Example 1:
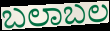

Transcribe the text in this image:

ಬಲಾಬಲ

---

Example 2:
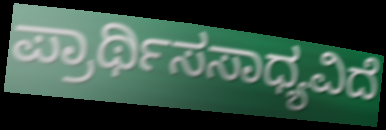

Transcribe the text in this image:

ಪ್ರಾರ್ಥಿಸಸಾಧ್ಯವಿದೆ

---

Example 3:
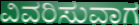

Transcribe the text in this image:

ವಿವರಿಸುವಾಗ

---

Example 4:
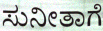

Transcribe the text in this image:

ಸುನೀತಾಗೆ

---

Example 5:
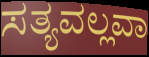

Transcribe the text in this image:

ಸತ್ಯವಲ್ಲವಾ